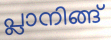
പ്ലാനിങ്ങ്